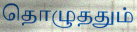
தொழுததும்